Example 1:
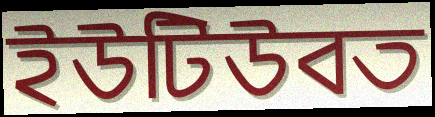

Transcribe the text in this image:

ইউটিউবত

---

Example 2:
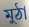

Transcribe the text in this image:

মুঠা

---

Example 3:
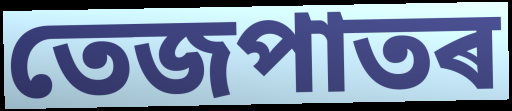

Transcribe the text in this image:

তেজপাতৰ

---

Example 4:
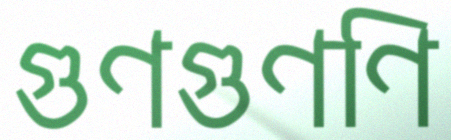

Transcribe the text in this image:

গুণগুণণি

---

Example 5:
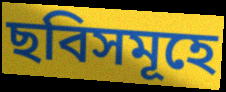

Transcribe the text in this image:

ছবিসমূহে